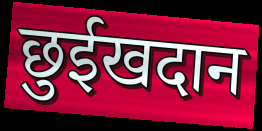
छुईखदान